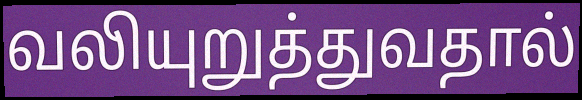
வலியுறுத்துவதால்